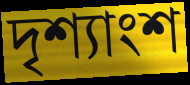
দৃশ্যাংশ